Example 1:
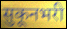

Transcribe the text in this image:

सुकूनभरी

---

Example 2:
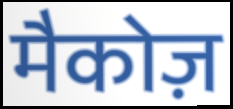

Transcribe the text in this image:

मैकोज़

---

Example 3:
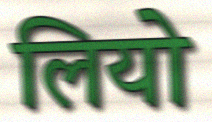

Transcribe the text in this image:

लियो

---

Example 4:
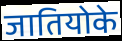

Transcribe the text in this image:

जातियोके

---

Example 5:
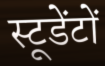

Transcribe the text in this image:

स्टूडेंटों